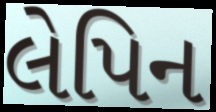
લેપિન